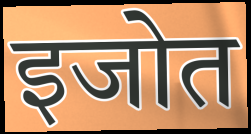
इजोत